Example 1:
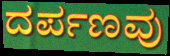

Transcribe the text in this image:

ದರ್ಪಣವು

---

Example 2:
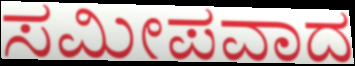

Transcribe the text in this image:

ಸಮೀಪವಾದ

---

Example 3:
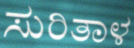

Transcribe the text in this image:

ಸುರಿತಾಳ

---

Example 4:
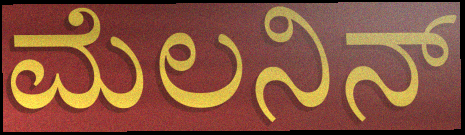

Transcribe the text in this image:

ಮೆಲನಿನ್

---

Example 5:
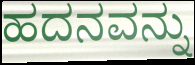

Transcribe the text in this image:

ಹದನವನ್ನು